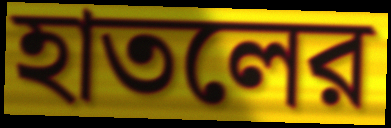
হাতলের